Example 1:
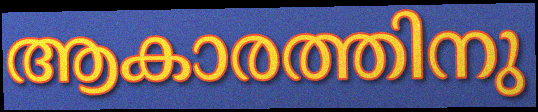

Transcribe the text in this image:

ആകാരത്തിനു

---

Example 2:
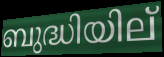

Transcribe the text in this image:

ബുദ്ധിയില്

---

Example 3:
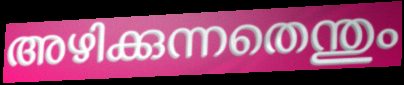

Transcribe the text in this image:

അഴിക്കുന്നതെന്തും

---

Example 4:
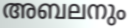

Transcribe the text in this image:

അബലനും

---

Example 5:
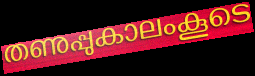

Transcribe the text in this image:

തണുപ്പുകാലംകൂടെ